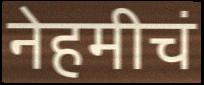
नेहमीचं